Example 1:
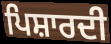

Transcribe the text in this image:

ਪਿਸ਼ਾਰਦੀ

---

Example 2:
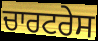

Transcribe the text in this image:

ਚਾਰਟਰੇਸ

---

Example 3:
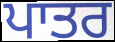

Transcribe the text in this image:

ਪਾਤਰ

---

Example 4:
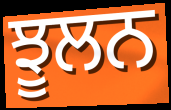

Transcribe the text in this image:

ਝੂਲਨ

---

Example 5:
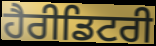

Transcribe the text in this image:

ਹੈਰੀਡਿਟਰੀ